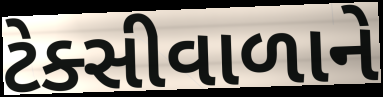
ટેક્સીવાળાને